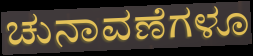
ಚುನಾವಣೆಗಳೂ